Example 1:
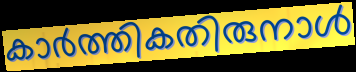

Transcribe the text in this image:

കാർത്തികതിരുനാൾ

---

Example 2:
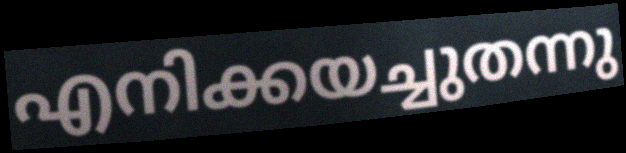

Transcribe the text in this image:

എനിക്കയച്ചുതന്നു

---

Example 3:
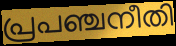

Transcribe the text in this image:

പ്രപഞ്ചനീതി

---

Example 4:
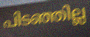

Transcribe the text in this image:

പിടഞ്ഞില്ല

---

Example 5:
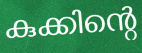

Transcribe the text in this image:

കുക്കിന്റെ